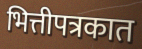
भित्तीपत्रकात